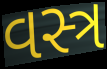
વસ્ત્ર